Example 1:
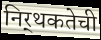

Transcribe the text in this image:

निर्थकतेची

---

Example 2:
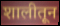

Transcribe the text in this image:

शालीतून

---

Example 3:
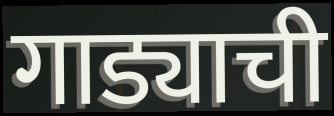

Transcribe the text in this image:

गाड्याची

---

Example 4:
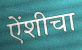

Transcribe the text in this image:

ऐंशीचा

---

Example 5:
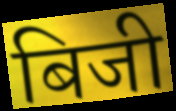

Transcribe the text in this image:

बिजी